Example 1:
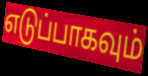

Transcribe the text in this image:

எடுப்பாகவும்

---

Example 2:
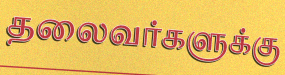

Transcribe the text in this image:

தலைவர்களுக்கு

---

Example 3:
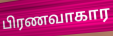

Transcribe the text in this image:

பிரணவாகார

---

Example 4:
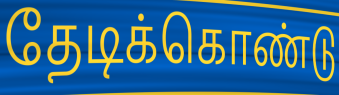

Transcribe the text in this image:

தேடிக்கொண்டு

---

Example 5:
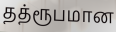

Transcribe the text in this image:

தத்ரூபமான